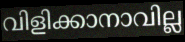
വിളിക്കാനാവില്ല